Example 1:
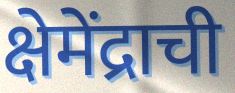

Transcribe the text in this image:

क्षेमेंद्राची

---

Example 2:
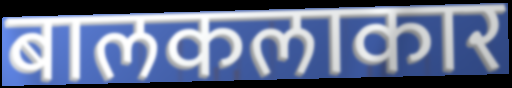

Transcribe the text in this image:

बालकलाकार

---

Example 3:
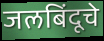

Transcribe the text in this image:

जलबिंदूचे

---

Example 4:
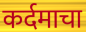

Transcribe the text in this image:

कर्दमाचा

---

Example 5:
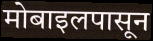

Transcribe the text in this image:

मोबाइलपासून